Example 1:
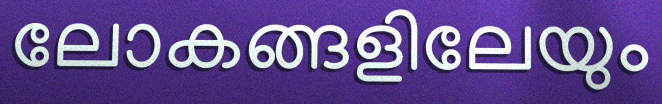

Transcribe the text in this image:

ലോകങ്ങളിലേയും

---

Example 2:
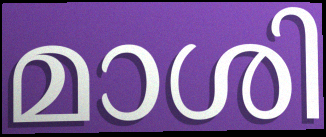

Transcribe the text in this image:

മാശി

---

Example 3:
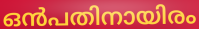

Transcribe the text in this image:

ഒൻപതിനായിരം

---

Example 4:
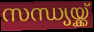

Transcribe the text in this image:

സന്ധ്യയ്ക്ക്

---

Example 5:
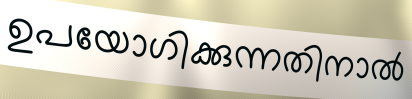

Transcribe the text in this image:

ഉപയോഗിക്കുന്നതിനാൽ